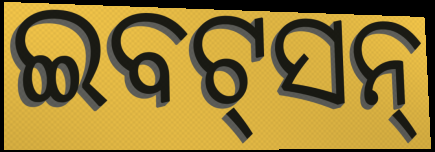
ଇବଟ୍‌ସନ୍